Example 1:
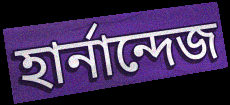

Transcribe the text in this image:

হার্নান্দেজ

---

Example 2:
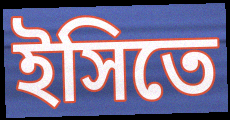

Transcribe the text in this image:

ইসিতে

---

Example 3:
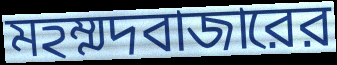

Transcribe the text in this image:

মহম্মদবাজারের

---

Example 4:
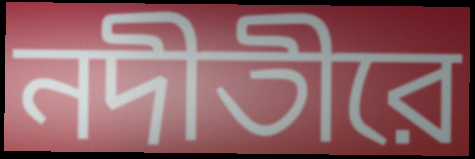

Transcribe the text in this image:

নদীতীরে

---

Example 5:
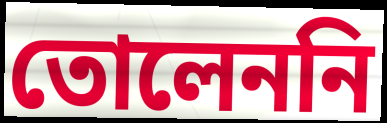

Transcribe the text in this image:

তোলেননি